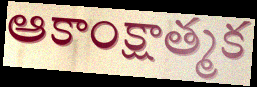
ఆకాంక్షాత్మక